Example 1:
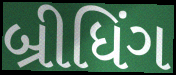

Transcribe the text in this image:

બ્રીધિંગ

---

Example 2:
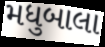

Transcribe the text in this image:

મધુબાલા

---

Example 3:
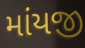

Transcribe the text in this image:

માંયજી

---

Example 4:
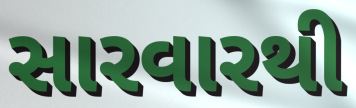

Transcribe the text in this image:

સારવારથી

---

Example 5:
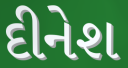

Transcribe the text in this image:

દીનેશ